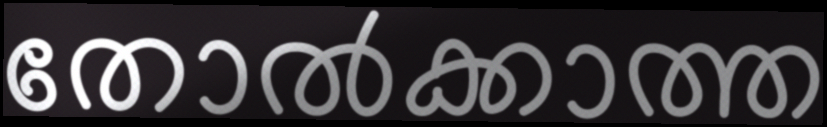
തോൽക്കാത്ത